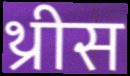
थ्रीस